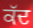
ਕੱਦ